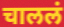
चाललं